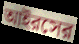
আইরসের